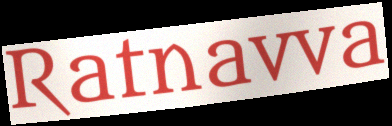
Ratnavva